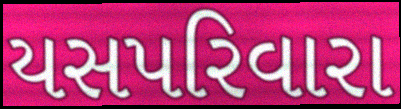
યસપરિવારા